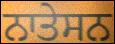
ਨਾਤੇਸਨ